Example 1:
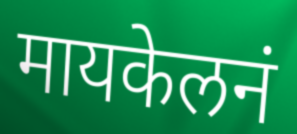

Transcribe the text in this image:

मायकेलनं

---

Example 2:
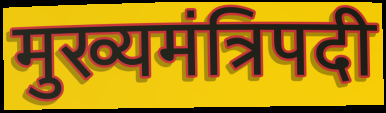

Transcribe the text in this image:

मुख्यमंत्रिपदी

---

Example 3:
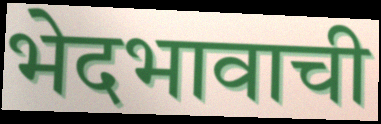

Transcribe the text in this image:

भेदभावाची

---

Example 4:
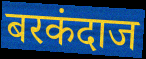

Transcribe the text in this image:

बरकंदाज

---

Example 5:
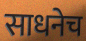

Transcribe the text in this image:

साधनेच